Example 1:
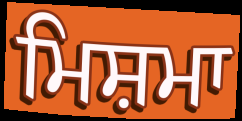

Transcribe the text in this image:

ਮਿਸ਼ਮਾ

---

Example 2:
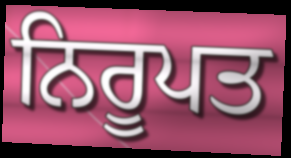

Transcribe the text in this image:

ਨਿਰੂਪਤ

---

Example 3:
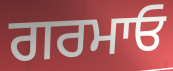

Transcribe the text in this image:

ਗਰਮਾਓ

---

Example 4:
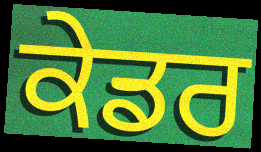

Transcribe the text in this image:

ਕੇਡਰ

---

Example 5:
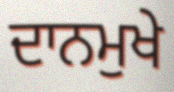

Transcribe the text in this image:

ਦਾਨਮੁਖੇ